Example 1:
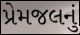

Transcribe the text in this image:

પ્રેમજલનું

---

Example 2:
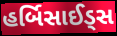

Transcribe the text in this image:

હર્બિસાઈડ્સ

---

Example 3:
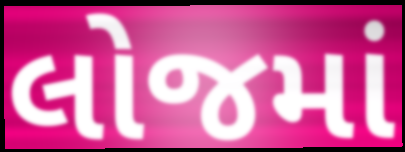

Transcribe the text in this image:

લોજમાં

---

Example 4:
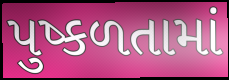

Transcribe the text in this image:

પુષ્કળતામાં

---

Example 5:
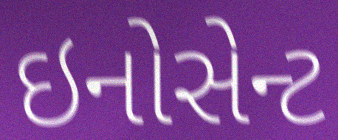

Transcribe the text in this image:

ઇનોસેન્ટ